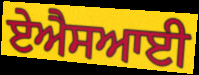
ਏਐਸਆਈ